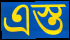
এস্ত